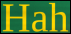
Hah